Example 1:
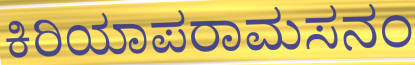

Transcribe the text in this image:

ಕಿರಿಯಾಪರಾಮಸನಂ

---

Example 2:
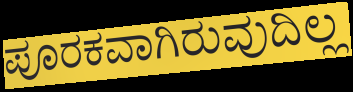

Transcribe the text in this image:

ಪೂರಕವಾಗಿರುವುದಿಲ್ಲ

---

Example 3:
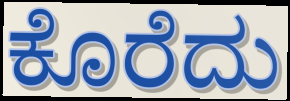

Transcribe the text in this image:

ಕೊರೆದು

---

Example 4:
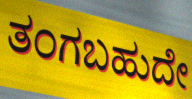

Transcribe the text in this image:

ತಂಗಬಹುದೇ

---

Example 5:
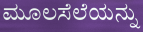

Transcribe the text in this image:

ಮೂಲಸೆಲೆಯನ್ನು